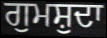
ਗੁਮਸ਼ੁਦਾ